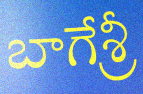
బాగేశ్రీ